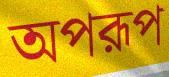
অপরূপ